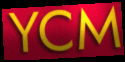
YCM